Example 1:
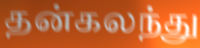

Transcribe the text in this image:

தன்கலந்து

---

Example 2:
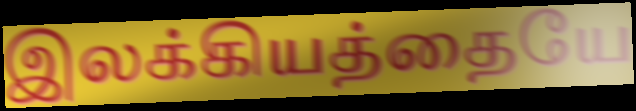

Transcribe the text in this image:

இலக்கியத்தையே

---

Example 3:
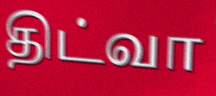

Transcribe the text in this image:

திட்வா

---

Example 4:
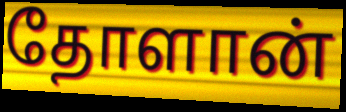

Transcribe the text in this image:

தோளான்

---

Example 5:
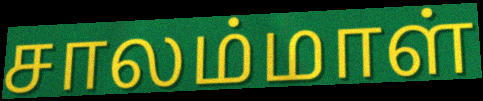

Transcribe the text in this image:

சாலம்மாள்